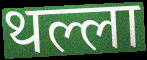
थल्ला